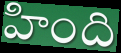
హింది